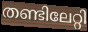
തണ്ടിലേറ്റി